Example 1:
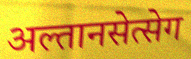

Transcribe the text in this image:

अल्तानसेत्सेग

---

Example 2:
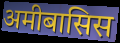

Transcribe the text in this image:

अमीबासिस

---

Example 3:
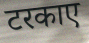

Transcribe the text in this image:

टरकाए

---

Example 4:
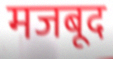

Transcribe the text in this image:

मजबूद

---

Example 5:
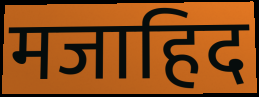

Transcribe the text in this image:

मजाहिद